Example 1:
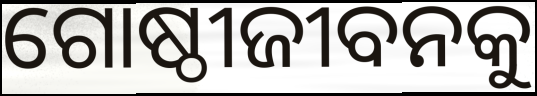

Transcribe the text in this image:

ଗୋଷ୍ଠୀଜୀବନକୁ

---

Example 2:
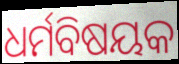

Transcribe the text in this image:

ଧର୍ମବିଷୟକ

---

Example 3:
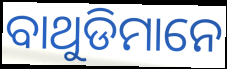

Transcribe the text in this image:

ବାଥୁଡିମାନେ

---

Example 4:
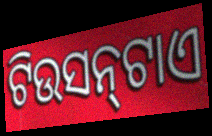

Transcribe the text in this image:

ଟିଉସନ୍‍ଟାଏ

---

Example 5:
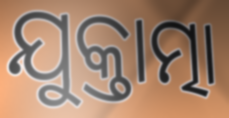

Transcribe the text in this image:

ଯୁକ୍ତାତ୍ମା